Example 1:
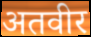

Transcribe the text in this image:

अतवीर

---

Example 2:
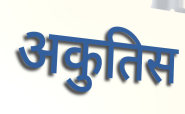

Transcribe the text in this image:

अकुतिस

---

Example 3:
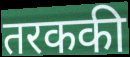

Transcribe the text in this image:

तरककी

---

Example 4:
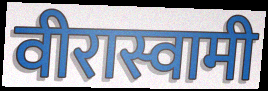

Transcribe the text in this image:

वीरास्वामी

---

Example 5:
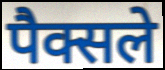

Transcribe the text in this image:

पैक्सले